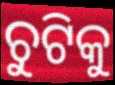
ଚୁଟିକୁ